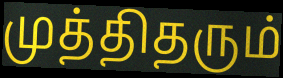
முத்திதரும்